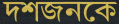
দশজনকে